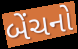
બેંચનો